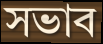
সভাব